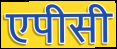
एपीसी